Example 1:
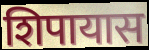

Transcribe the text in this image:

शिपायास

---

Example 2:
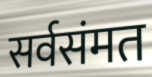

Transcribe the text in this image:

सर्वसंमत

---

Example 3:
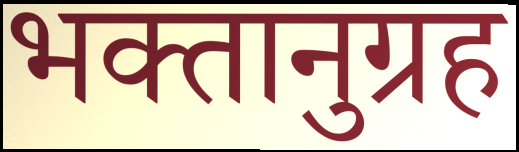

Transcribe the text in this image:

भक्तानुग्रह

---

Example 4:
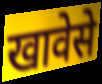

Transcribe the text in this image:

खावेसे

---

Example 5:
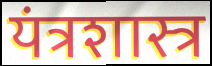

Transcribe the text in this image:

यंत्रशास्त्र